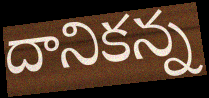
దానికన్న